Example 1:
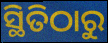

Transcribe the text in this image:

ସ୍ଥିତିଠାରୁ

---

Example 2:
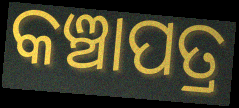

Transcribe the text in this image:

କଞ୍ଚାପତ୍ର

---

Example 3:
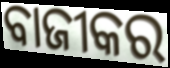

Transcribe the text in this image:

ବାଜୀକର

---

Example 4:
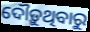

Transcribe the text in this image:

ଦୌଡ଼ୁଥିବାରୁ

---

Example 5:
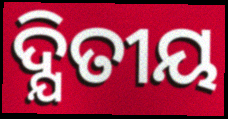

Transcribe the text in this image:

ଦ୍ଯିତୀୟ